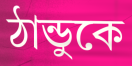
ঠান্ডুকে